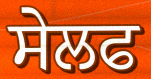
ਸੇਲਫ